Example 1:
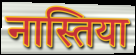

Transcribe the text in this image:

नास्तिया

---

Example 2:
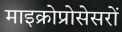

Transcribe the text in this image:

माइक्रोप्रोसेसरों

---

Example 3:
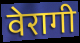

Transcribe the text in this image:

वेरागी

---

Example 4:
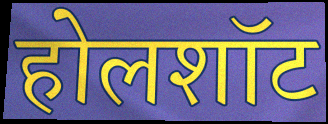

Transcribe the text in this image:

होलशॉट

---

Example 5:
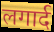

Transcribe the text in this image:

लगार्द